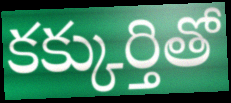
కక్కుర్తితో